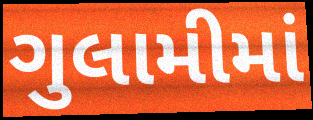
ગુલામીમાં